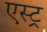
एस्ट्र